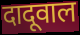
दादूवाल